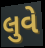
લુવે